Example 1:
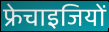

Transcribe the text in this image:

फ्रेचाइजियों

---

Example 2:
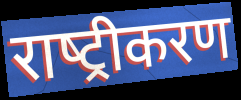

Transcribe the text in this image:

राष्ट्रीकरण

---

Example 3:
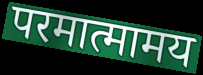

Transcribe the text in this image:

परमात्मामय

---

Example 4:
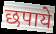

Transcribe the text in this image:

छपाये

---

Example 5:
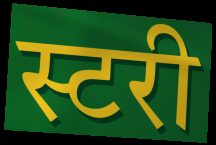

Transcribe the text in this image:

स्टरी